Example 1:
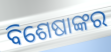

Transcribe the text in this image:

ବିଶେଷାଙ୍କର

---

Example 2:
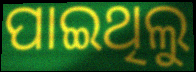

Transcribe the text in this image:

ପାଇଥିଲୁ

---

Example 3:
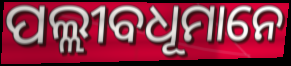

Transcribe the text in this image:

ପଲ୍ଲୀବଧୂମାନେ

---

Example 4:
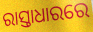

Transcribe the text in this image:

ରାସ୍ତାଧାରରେ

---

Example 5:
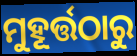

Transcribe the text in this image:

ମୁହୂର୍ତ୍ତଠାରୁ